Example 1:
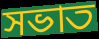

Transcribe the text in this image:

সভাত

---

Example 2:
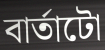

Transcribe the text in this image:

বাৰ্তাটো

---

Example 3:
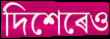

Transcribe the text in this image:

দিশেৰেও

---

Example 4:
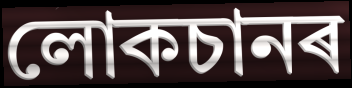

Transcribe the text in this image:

লোকচানৰ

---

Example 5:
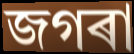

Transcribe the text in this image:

জগৰা